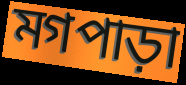
মগপাড়া